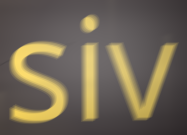
siv